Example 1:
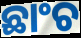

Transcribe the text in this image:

ଛାଂଚ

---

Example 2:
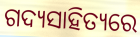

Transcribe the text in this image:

ଗଦ୍ୟସାହିତ୍ୟରେ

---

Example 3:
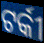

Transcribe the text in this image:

ଟର୍କୀ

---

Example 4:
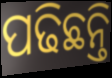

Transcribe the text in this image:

ପଢିଛନ୍ତି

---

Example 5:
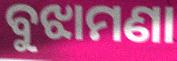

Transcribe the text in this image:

ବୁଝାମଣା